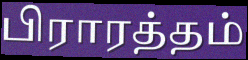
பிராரத்தம்